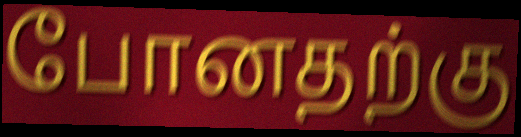
போனதற்கு